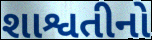
શાશ્વતીનો